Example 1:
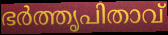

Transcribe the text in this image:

ഭർത്തൃപിതാവ്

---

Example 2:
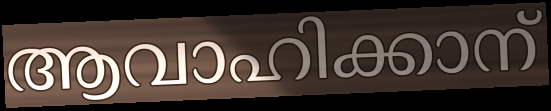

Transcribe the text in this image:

ആവാഹിക്കാന്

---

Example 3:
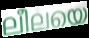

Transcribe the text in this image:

ലീലയെ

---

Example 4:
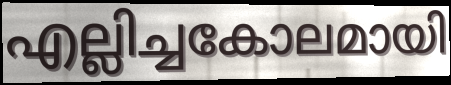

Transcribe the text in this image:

എല്ലിച്ചകോലമായി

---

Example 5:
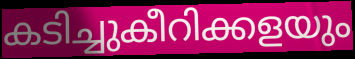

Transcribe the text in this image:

കടിച്ചുകീറിക്കളയും